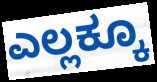
ಎಲ್ಲಕ್ಕೂ